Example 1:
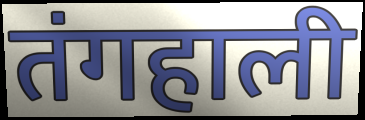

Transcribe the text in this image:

तंगहाली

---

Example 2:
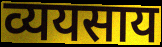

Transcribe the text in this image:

व्ययसाय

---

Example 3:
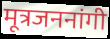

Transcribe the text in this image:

मूत्रजननांगी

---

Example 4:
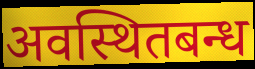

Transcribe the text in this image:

अवस्थितबन्ध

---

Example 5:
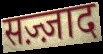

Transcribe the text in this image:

सज़्ज़ाद